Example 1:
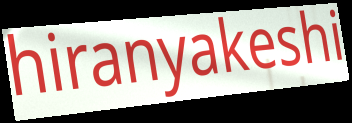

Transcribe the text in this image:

hiranyakeshi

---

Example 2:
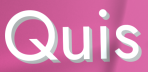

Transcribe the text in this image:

Quis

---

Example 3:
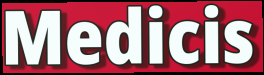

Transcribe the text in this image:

Medicis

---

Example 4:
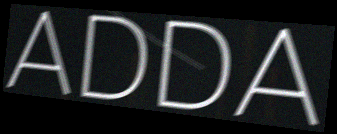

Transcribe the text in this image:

ADDA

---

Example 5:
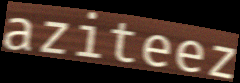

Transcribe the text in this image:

aziteez